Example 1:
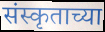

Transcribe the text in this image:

संस्कृताच्या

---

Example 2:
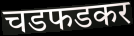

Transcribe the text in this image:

चडफडकर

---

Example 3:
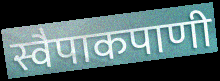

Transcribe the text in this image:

स्वैपाकपाणी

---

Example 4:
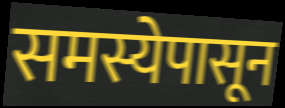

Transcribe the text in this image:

समस्येपासून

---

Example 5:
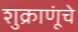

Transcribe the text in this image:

शुक्राणूंचे